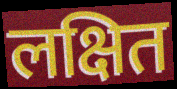
लक्षित